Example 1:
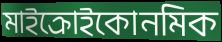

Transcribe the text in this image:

মাইক্রোইকোনমিক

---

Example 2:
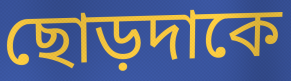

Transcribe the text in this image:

ছোড়দাকে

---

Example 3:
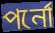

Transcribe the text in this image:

পর্নো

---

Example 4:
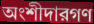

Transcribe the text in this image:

অংশীদারগণ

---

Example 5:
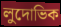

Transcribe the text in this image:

লুদোভিক